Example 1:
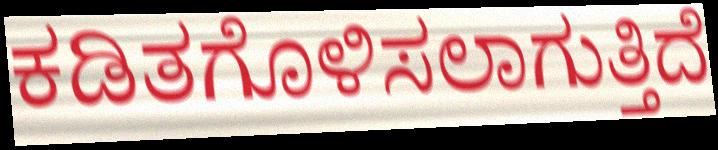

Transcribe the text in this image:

ಕಡಿತಗೊಳಿಸಲಾಗುತ್ತಿದೆ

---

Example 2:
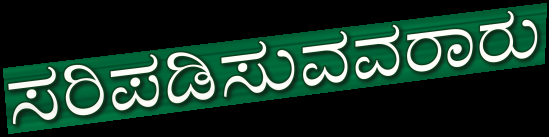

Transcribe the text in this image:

ಸರಿಪಡಿಸುವವರಾರು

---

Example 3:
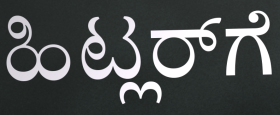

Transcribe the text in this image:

ಹಿಟ್ಲರ್‌ಗೆ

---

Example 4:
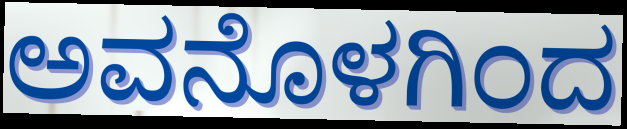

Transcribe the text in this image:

ಅವನೊಳಗಿಂದ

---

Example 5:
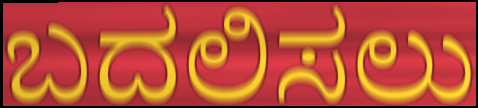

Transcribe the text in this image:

ಬದಲಿಸಲು